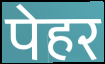
पेहर